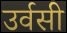
उर्वसी